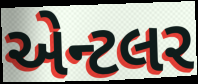
એન્ટલર